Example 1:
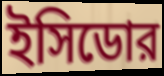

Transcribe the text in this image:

ইসিডোর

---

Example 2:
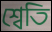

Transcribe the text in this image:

শ্বেতি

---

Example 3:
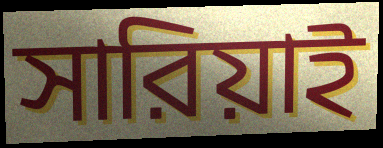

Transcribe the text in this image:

সারিয়াই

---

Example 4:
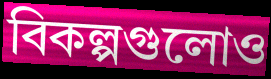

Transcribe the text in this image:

বিকল্পগুলোও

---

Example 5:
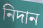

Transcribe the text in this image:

নিদান